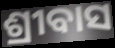
ଶ୍ରୀବାସ